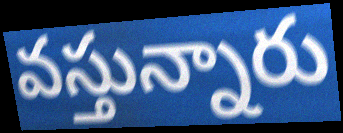
వస్తున్నారు